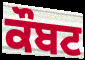
ਕੌਬਟ